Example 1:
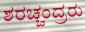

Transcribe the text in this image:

ಶರಚ್ಚಂದ್ರರು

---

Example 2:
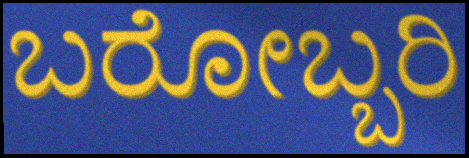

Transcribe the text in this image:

ಬರೋಬ್ಬರಿ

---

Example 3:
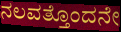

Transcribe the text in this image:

ನಲವತ್ತೊಂದನೇ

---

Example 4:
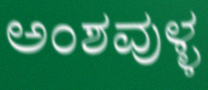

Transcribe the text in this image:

ಅಂಶವುಳ್ಳ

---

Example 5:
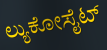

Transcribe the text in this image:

ಲ್ಯುಕೋಸೈಟ್